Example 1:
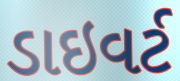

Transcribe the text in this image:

ડાઇવર્ટ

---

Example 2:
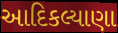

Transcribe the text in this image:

આદિકલ્યાણા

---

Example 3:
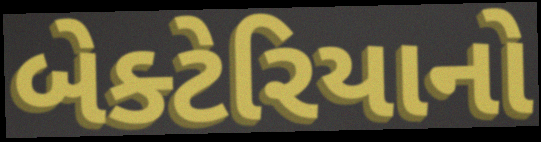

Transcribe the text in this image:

બેક્ટેરિયાનો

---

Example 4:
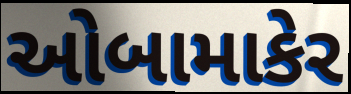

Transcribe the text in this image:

ઓબામાકેર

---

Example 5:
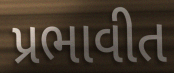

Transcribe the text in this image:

પ્રભાવીત